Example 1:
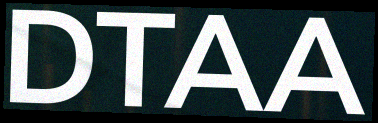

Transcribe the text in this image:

DTAA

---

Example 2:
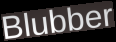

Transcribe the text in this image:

Blubber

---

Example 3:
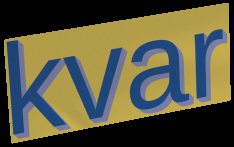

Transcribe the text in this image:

kvar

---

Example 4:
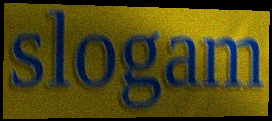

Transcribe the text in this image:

slogam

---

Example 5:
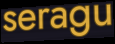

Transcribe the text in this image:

seragu